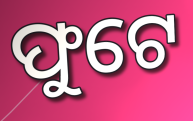
ଫୁଟେ